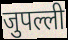
जुपल्ली